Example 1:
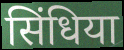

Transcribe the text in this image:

सिंधिया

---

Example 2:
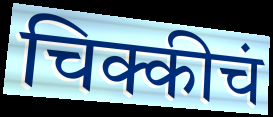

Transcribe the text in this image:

चिक्कीचं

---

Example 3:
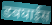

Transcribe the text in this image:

डबघाईस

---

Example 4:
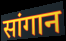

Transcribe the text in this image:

सांगान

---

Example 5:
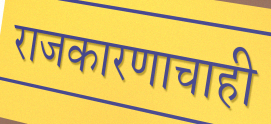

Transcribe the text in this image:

राजकारणाचाही